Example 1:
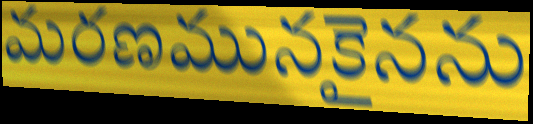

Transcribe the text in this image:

మరణమునకైనను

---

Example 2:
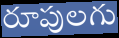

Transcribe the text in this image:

రూపులగు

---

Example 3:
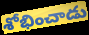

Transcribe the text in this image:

శోభించాడు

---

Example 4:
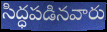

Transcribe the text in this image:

సిద్ధపడినవారు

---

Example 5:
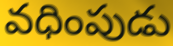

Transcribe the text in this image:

వధింపుడు